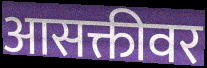
आसक्तीवर